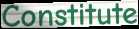
Constitute